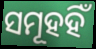
ସମୂହହିଁ